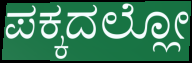
ಪಕ್ಕದಲ್ಲೋ